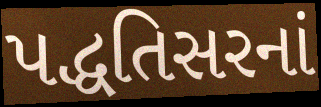
પદ્ધતિસરનાં